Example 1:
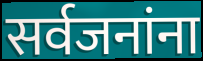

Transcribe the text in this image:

सर्वजनांना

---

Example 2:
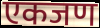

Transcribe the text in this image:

एकजण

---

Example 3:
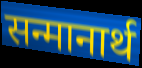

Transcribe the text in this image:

सन्मानार्थ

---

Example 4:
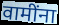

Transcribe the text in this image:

वामींना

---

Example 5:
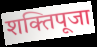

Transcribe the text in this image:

शक्तिपूजा